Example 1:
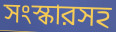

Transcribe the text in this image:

সংস্কারসহ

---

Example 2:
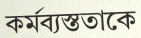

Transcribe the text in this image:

কর্মব্যস্ততাকে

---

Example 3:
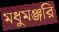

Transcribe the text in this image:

মধুমঞ্জরি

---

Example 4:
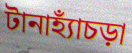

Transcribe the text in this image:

টানাহ্যাঁচড়া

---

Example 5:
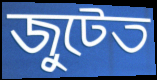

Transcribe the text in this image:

জুট্তে